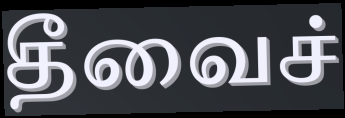
தீவைச்